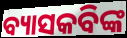
ବ୍ୟାସକବିଙ୍କ